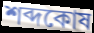
শব্দকোষ